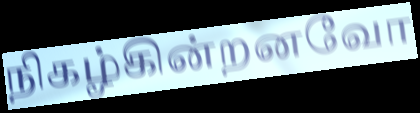
நிகழ்கின்றனவோ